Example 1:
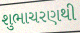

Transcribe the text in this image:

શુભાચરણથી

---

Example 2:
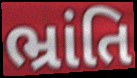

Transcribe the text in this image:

ભ્રાંતિ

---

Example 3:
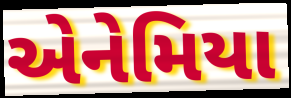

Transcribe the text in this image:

એનેમિયા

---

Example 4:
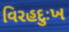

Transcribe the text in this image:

વિરહદુઃખ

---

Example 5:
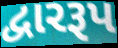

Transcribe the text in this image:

દ્વારરૂપ